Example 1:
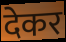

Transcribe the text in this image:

देकर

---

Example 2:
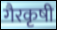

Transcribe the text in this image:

गैरकृषी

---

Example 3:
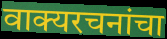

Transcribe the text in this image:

वाक्यरचनांचा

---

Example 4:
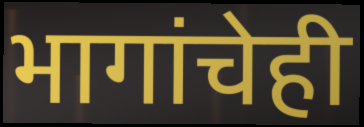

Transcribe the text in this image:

भागांचेही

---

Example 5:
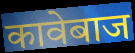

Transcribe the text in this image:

कावेबाज